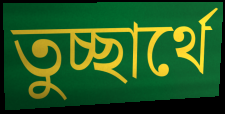
তুচ্ছার্থে